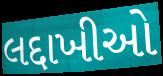
લદ્દાખીઓ